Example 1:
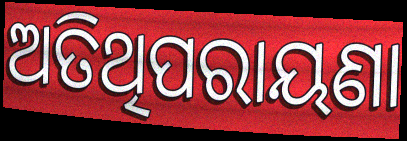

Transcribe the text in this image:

ଅତିଥିପରାୟଣା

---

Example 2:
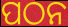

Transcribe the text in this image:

ପଠନ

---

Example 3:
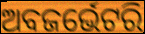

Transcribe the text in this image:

ଅବଜର୍ଭେଟରି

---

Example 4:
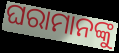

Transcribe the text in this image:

ଘରାମାନଙ୍କୁ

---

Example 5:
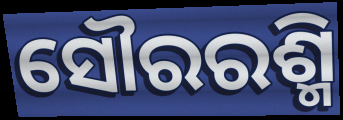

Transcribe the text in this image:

ସୌରରଶ୍ମି